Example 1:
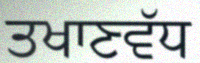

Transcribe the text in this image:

ਤਖਾਣਵੱਧ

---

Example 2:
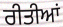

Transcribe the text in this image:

ਰੀਤੀਆਂ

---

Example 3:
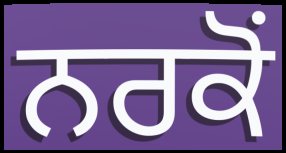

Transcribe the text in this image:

ਨਰਕੋਂ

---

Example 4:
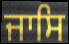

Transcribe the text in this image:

ਜਾਸਿ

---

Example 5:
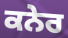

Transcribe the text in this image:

ਕਨੇਰ